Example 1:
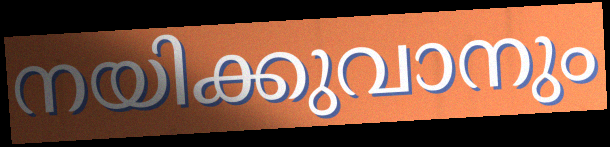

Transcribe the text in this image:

നയിക്കുവാനും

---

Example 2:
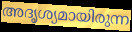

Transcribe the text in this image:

അദൃശ്യമായിരുന്ന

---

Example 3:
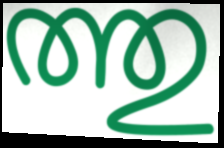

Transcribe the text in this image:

ത്തു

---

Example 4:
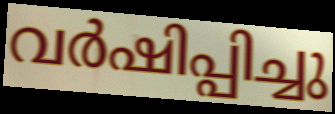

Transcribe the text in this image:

വർഷിപ്പിച്ചു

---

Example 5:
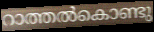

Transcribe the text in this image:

റാത്തൽകൊണ്ടു